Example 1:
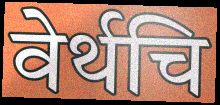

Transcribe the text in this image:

वेर्थचि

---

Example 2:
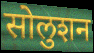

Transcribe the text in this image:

सोलुशन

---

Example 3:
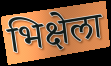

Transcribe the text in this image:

भिक्षेला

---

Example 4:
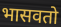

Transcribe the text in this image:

भासवतो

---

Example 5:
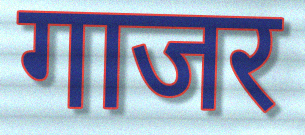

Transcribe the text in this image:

गाजर